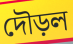
দৌড়ল